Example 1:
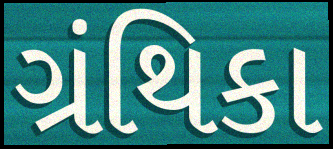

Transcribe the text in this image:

ગ્રંથિકા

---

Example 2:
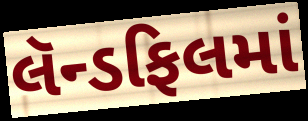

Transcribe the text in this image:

લૅન્ડફિલમાં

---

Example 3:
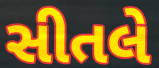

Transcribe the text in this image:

સીતલે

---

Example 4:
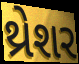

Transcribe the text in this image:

થ્રેશર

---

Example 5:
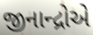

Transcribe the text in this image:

જીનાન્દ્રોએ